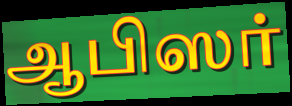
ஆபிஸர்